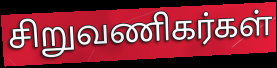
சிறுவணிகர்கள்